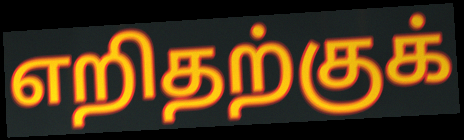
எறிதற்குக்